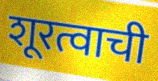
शूरत्वाची